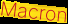
Macron